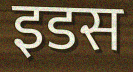
इडस